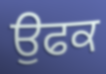
ਉਫਕ